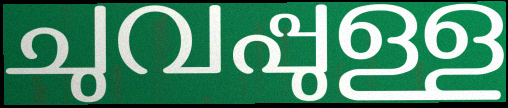
ചുവപ്പുള്ള